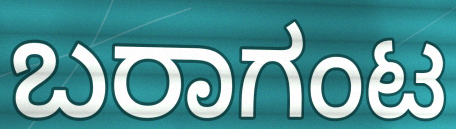
ಬರಾಗಂಟ